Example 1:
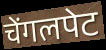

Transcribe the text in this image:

चेंगलपेट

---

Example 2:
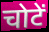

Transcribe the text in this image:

चोटें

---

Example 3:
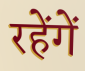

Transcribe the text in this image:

रहेंगें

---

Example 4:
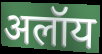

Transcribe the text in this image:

अलॉय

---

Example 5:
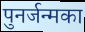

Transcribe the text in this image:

पुनर्जन्मका